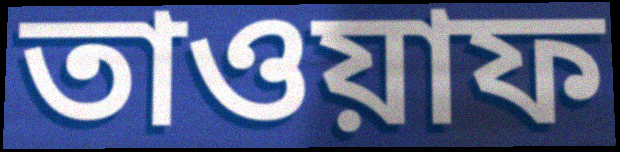
তাওয়াফ